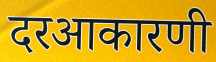
दरआकारणी